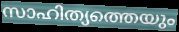
സാഹിത്യത്തെയും